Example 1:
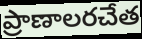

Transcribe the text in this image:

ప్రాణాలరచేత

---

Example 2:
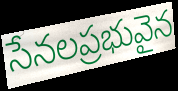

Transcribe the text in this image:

సేనలప్రభువైన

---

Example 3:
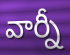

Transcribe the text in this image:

వార్నీ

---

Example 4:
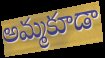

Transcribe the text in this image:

అమ్మకూడా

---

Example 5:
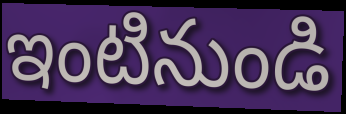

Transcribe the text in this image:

ఇంటినుండి